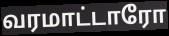
வரமாட்டாரோ